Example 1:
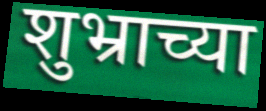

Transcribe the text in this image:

शुभ्राच्या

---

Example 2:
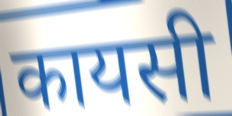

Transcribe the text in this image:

कायसी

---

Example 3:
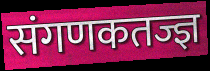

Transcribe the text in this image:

संगणकतज्ज्ञ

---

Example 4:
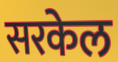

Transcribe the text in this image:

सरकेल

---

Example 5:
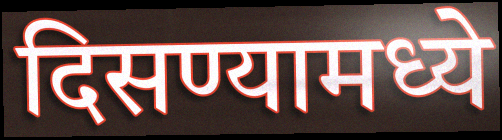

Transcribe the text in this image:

दिसण्यामध्ये